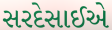
સરદેસાઈએ